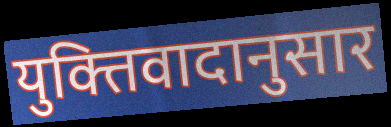
युक्तिवादानुसार